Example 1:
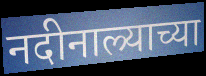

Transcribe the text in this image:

नदीनाल्याच्या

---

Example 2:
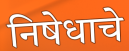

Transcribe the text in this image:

निषेधाचे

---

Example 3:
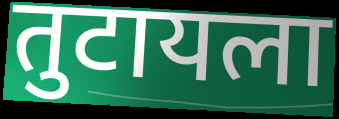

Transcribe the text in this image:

तुटायला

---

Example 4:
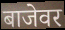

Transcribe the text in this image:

बाजेवर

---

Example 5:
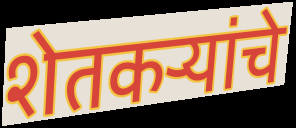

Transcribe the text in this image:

शेतकऱ्यांचे